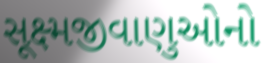
સૂક્ષ્મજીવાણુઓનો